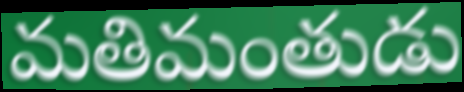
మతిమంతుడు